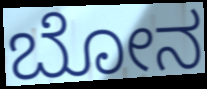
ಬೋನ